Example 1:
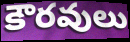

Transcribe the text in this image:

కౌరవులు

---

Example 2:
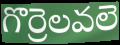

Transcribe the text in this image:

గొర్రెలవలె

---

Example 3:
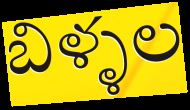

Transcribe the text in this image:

బిళ్ళల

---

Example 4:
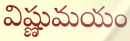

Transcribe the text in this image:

విష్ణుమయం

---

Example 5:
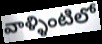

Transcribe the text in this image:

వాళ్ళింటిలో